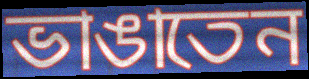
ভাঙাতেন